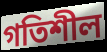
গতিশীল